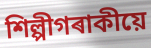
শিল্পীগৰাকীয়ে